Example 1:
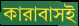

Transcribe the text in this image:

কারাবাসই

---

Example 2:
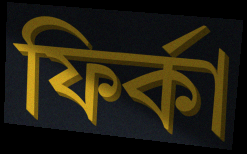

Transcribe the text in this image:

ফির্কা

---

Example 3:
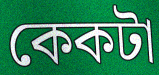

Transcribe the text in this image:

কেকটা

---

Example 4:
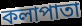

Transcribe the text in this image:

কলাপাতা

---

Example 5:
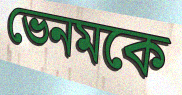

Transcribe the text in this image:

ভেনমকে